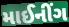
માઈનીંગ